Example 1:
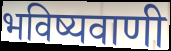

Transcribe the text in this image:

भविष्यवाणी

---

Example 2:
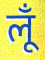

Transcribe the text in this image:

लूँ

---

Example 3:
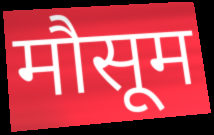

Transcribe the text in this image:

मौसूम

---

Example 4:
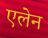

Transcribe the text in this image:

एलेन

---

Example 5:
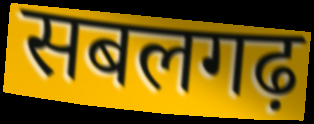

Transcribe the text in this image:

सबलगढ़